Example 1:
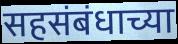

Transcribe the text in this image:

सहसंबंधाच्या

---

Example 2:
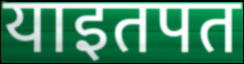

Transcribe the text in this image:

याइतपत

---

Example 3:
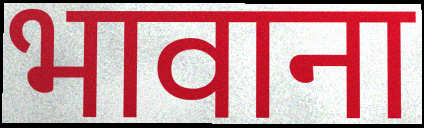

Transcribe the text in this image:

भावाना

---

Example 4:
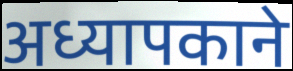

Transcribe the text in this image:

अध्यापकाने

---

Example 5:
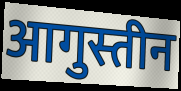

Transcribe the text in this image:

आगुस्तीन